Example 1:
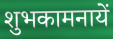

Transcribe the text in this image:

शुभकामनायें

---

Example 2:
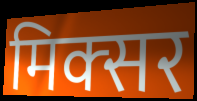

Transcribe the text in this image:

मिक्‍सर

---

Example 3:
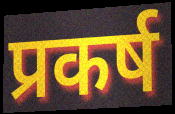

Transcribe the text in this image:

प्रकर्ष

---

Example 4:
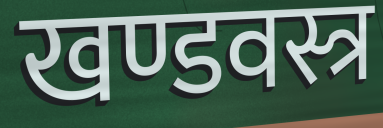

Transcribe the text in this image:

खण्डवस्त्र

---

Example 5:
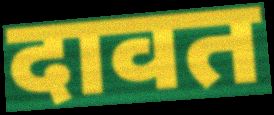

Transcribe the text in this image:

दावत